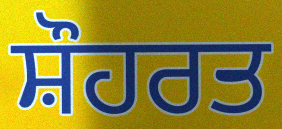
ਸ਼ੌਹਰਤ